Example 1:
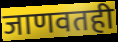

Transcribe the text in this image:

जाणवतही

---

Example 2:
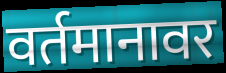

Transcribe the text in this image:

वर्तमानावर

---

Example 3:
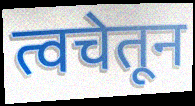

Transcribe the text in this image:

त्वचेतून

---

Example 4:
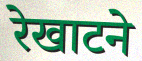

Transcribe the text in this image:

रेखाटने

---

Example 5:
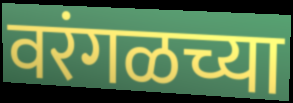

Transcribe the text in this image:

वरंगळच्या